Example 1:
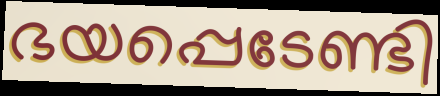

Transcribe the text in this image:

ഭയപ്പെടേണ്ടി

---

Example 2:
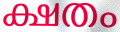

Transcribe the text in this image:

ക്ഷതം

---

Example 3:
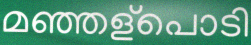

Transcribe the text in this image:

മഞ്ഞള്പൊടി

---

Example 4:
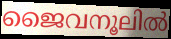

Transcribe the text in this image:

ജൈവനൂലിൽ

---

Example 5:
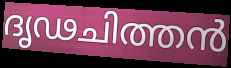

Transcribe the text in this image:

ദൃഢചിത്തൻ